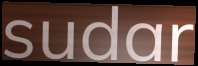
sudar